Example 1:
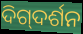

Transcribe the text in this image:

ଦିଗ୍‍ଦର୍ଶନ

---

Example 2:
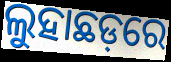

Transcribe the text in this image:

ଲୁହାଛଡ଼ରେ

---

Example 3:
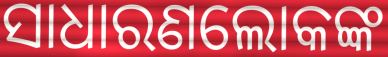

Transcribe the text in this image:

ସାଧାରଣଲୋକଙ୍କ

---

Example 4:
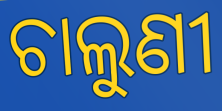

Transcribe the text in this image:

ଚାଲୁଣୀ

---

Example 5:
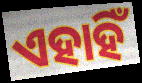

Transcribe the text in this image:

ଏହାହିଁ